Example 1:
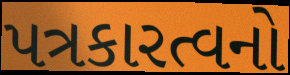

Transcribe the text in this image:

પત્રકારત્વનો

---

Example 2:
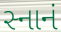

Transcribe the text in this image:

સ્નાનં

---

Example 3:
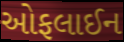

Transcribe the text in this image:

ઓફલાઈન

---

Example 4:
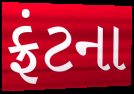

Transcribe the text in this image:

ફ્રંટના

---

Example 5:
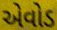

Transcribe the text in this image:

એવોડ